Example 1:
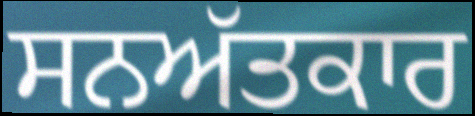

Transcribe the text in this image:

ਸਨਅੱਤਕਾਰ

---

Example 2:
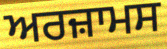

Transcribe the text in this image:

ਅਰਜ਼ਾਮਸ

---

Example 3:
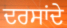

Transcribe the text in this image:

ਦਰਸਾਂਦੇ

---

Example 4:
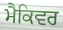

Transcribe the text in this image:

ਮੈਕਿਵਰ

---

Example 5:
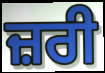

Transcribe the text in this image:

ਜ਼ਰੀ